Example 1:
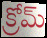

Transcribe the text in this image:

క్రోమ్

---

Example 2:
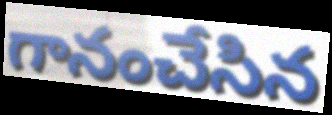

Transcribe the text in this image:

గానంచేసిన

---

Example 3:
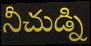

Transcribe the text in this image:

నీచుడ్ని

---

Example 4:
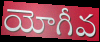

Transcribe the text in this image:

యోగీవ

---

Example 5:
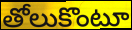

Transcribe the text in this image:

తోలుకొంటూ